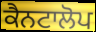
ਕੈਨਟਾਲੋਪ